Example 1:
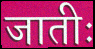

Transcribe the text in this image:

जातीः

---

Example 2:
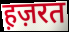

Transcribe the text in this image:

ह़ज़रत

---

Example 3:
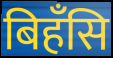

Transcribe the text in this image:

बिहँसि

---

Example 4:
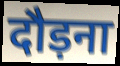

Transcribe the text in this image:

दौड़ना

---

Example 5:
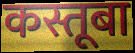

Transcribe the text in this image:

कस्तूबा